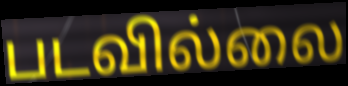
படவில்லை